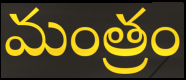
మంత్రం